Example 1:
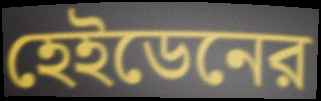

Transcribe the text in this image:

হেইডেনের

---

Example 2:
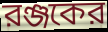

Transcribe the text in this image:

রঞ্জকের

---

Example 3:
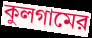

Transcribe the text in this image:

কুলগামের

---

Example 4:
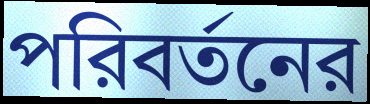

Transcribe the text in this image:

পরিবর্তনের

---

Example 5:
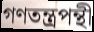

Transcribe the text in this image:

গণতন্ত্রপন্থী